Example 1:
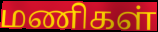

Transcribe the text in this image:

மணிகள்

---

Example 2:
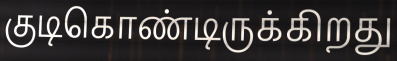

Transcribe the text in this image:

குடிகொண்டிருக்கிறது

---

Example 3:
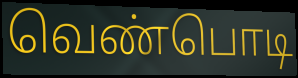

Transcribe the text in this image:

வெண்பொடி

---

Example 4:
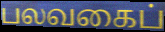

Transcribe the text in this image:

பலவகைப்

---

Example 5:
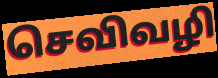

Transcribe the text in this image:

செவிவழி